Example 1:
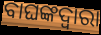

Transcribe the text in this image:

ବାଘଙ୍କଦ୍ୱାରା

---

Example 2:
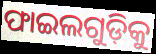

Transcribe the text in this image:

ଫାଇଲଗୁଡ଼ିକୁ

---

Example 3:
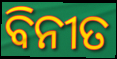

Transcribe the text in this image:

ବିନୀତ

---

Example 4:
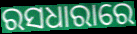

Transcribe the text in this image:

ରସଧାରାରେ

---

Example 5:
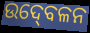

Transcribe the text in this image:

ଉଦ୍‍ବେଳନ